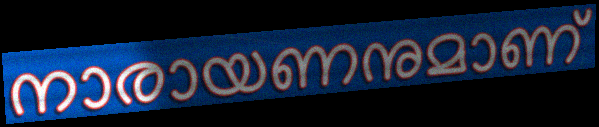
നാരായണനുമാണ്